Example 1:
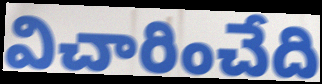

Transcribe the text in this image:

విచారించేది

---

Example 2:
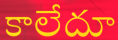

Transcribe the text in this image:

కాలేదూ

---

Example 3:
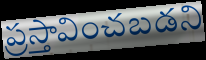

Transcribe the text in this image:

ప్రస్తావించబడని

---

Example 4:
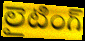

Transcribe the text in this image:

లైటింగ్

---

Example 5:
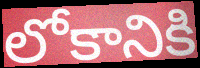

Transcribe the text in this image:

లోకానికి